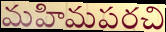
మహిమపరచి